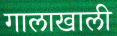
गालाखाली